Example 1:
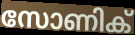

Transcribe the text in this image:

സോണിക്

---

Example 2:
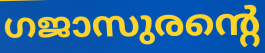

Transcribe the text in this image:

ഗജാസുരന്റെ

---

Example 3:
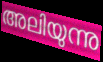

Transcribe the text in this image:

അലിയുന്നു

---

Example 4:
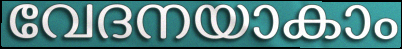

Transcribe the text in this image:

വേദനയാകാം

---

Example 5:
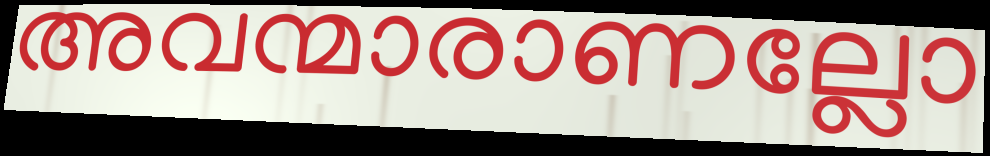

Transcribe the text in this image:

അവന്മാരാണല്ലോ